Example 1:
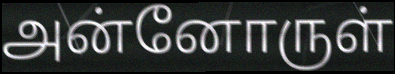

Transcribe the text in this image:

அன்னோருள்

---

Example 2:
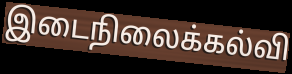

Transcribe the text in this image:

இடைநிலைக்கல்வி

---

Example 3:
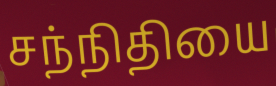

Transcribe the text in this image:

சந்நிதியை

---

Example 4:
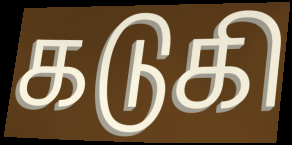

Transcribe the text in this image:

கடுகி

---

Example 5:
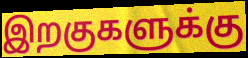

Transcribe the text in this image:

இறகுகளுக்கு